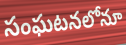
సంఘటనలోనూ